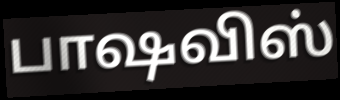
பாஷவிஸ்